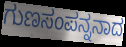
ಗುಣಸಂಪನ್ನನಾದ